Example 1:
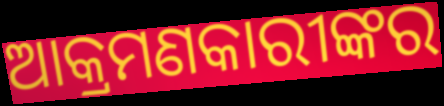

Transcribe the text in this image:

ଆକ୍ରମଣକାରୀଙ୍କର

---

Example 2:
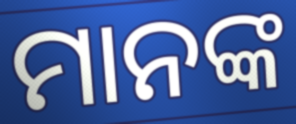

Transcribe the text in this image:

ମାନଙ୍କ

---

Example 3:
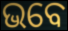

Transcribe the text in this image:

ଭବେ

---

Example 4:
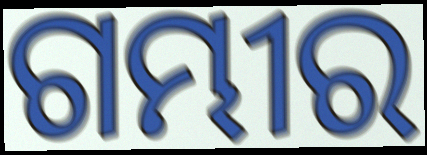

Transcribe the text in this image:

ଗମ୍ଭୀର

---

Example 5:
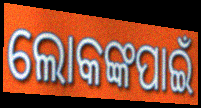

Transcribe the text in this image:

ଲୋକଙ୍କପାଇଁ